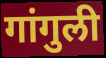
गांगुली